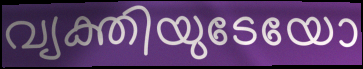
വ്യക്തിയുടേയോ